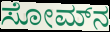
ಸೋಮ್‍ನ